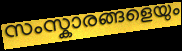
സംസ്കാരങ്ങളെയും